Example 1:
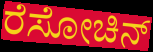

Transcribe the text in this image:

ರೆಸೋಚಿನ್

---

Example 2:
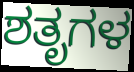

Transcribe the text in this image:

ಶತೃಗಳ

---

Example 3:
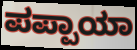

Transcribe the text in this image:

ಪಪ್ಪಾಯಾ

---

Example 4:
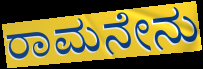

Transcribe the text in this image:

ರಾಮನೇನು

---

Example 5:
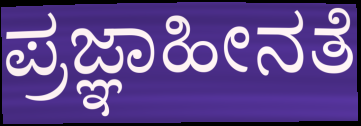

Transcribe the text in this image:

ಪ್ರಜ್ಞಾಹೀನತೆ